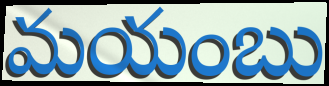
మయంబు